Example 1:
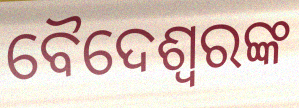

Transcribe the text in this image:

ବୈଦେଶ୍ୱରଙ୍କ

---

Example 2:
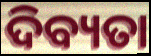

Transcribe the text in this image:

ଦିବ୍ୟତା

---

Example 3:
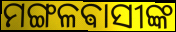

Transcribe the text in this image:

ମଙ୍ଗଳଵାସୀଙ୍କ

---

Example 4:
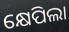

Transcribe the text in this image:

କ୍ଷେପିଲା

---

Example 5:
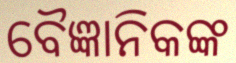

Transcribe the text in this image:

ବୈଜ୍ଞାନିକଙ୍କ